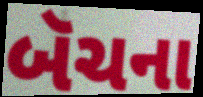
બૅચના